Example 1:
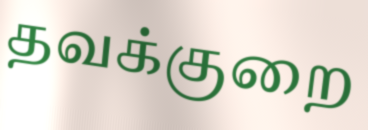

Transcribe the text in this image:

தவக்குறை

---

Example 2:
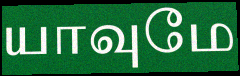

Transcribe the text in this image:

யாவுமே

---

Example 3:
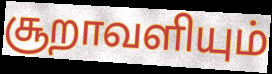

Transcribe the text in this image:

சூறாவளியும்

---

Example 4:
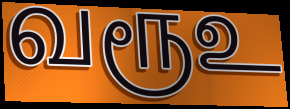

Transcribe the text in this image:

வரூஉ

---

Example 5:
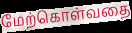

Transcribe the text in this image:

மேற்கொள்வதை